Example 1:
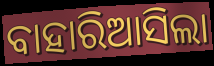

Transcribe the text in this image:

ବାହାରିଆସିଲା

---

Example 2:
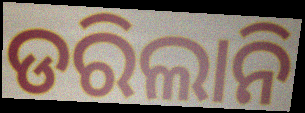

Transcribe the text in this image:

ଡରିଲାନି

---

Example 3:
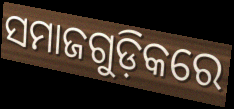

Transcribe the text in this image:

ସମାଜଗୁଡ଼ିକରେ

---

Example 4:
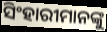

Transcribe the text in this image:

ସିଂହାରୀମାନଙ୍କୁ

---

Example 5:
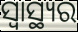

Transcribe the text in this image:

ସ୍ବାସ୍ଥ୍ୟର